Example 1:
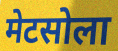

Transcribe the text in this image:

मेटसोला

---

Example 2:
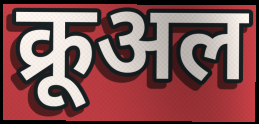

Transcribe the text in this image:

क्रूअल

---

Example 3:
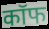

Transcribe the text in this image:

कॉफ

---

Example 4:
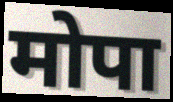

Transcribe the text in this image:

मोपा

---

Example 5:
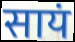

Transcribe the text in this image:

सायं